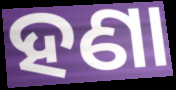
ହଣା